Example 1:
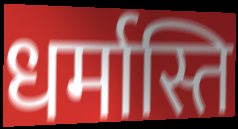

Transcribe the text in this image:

धर्मास्ति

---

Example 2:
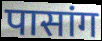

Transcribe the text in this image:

पासांग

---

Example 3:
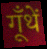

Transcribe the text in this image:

गूँथें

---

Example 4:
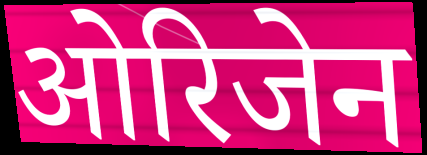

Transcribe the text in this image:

ओरिजेन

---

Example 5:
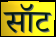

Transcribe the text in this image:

सॉट